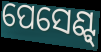
ପେସେଣ୍ଟ୍